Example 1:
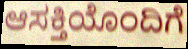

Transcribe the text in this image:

ಆಸಕ್ತಿಯೊಂದಿಗೆ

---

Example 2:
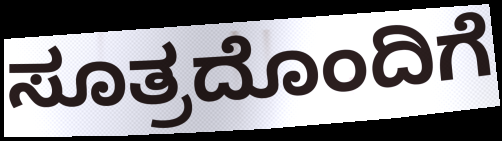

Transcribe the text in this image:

ಸೂತ್ರದೊಂದಿಗೆ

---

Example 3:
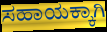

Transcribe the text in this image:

ಸಹಾಯಕ್ಕಾಗಿ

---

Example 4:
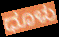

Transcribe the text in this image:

ಧೂಳು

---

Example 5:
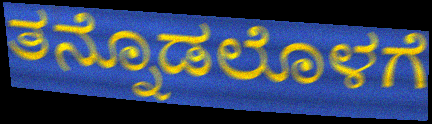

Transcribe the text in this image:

ತನ್ನೊಡಲೊಳಗೆ